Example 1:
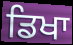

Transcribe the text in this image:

ਡਿਖਾ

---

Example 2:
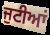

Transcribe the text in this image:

ਜੁਟੀਆਂ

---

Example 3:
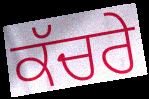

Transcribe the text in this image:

ਕੱਚਰੇ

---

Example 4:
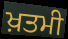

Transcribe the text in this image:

ਖ਼ਤਮੀ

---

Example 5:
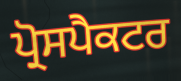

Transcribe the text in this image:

ਪ੍ਰੋਸਪੈਕਟਰ